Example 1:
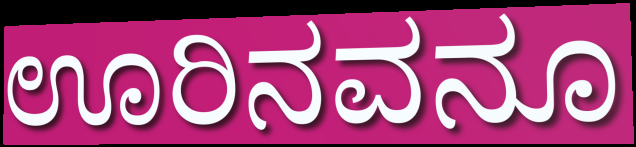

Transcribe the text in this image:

ಊರಿನವನೂ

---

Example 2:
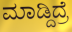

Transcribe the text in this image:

ಮಾಡ್ದಿದ್ರೆ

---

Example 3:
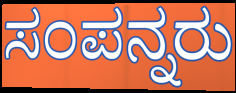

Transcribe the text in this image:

ಸಂಪನ್ನರು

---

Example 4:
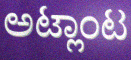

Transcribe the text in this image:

ಅಟ್ಲಾಂಟ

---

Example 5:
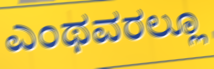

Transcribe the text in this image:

ಎಂಥವರಲ್ಲೂ